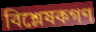
বিশ্লেষকগণ